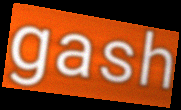
gash